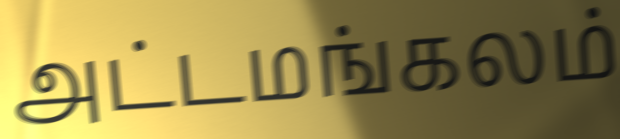
அட்டமங்கலம்